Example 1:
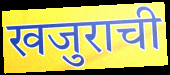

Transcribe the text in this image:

खजुराची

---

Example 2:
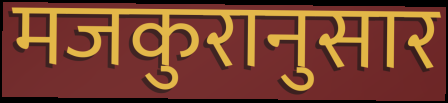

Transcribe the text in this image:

मजकुरानुसार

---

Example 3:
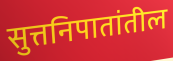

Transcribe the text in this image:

सुत्तनिपातांतील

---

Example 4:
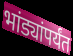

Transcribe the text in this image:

भांड्यांपर्यंत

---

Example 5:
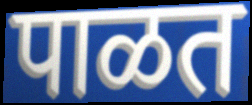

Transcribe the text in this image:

पाळत